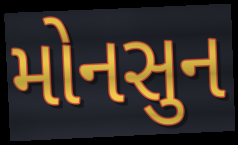
મોનસુન